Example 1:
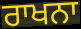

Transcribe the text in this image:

ਰਾਖਨਾ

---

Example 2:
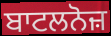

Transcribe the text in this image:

ਬਾਟਲਨੋਜ਼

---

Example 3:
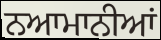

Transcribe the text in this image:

ਨਆਮਾਨੀਆਂ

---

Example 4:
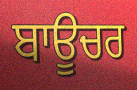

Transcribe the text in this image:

ਬਾਊਚਰ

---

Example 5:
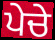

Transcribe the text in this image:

ਪੇਚੇ